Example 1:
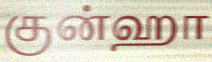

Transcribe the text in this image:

குன்ஹா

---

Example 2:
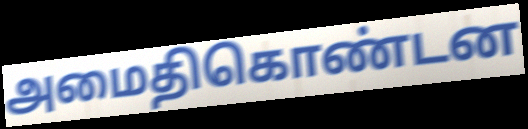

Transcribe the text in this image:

அமைதிகொண்டன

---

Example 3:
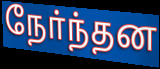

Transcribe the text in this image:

நேர்ந்தன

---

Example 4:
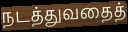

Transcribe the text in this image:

நடத்துவதைத்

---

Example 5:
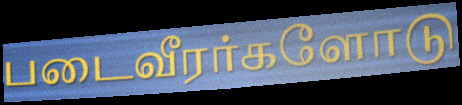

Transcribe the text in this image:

படைவீரர்களோடு